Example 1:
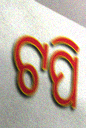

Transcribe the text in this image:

ଟପି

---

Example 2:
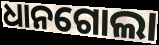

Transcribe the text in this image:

ଧାନଗୋଲା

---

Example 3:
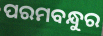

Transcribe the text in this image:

ପରମବନ୍ଧୁର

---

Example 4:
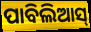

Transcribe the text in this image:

ପାବିଲିଆସ୍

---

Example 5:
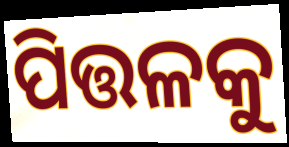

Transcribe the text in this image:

ପିତ୍ତଳକୁ